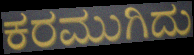
ಕರಮುಗಿದು